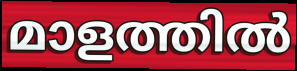
മാളത്തിൽ